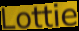
Lottie